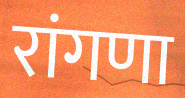
रांगणा